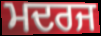
ਮਦਰਜ